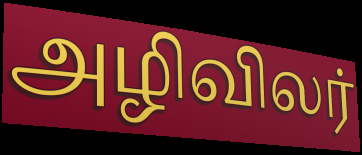
அழிவிலர்